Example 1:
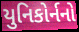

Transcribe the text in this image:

યુનિકોર્નનો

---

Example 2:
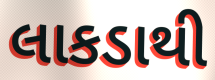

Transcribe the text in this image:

લાકડાથી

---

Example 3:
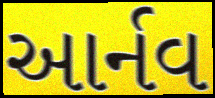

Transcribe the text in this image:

આર્નવ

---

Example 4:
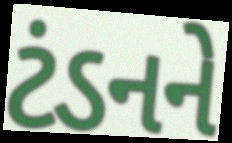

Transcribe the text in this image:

ટંડનને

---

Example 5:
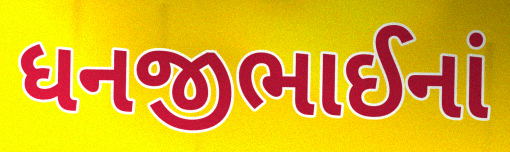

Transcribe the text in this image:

ધનજીભાઈનાં